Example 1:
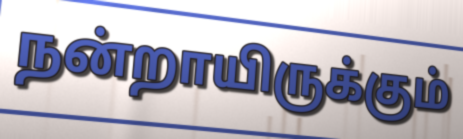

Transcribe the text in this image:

நன்றாயிருக்கும்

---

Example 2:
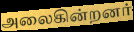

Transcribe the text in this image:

அலைகின்றனர்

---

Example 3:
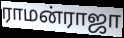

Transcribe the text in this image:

ராமன்ராஜா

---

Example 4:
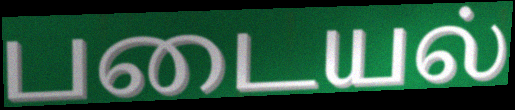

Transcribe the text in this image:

படையல்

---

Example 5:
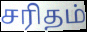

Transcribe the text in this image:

சரிதம்